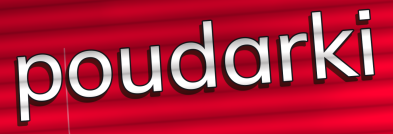
poudarki